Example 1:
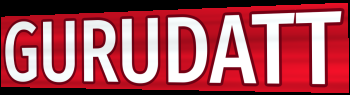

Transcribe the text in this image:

GURUDATT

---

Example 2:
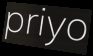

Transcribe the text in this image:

priyo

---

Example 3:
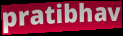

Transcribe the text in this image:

pratibhav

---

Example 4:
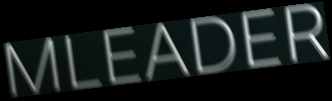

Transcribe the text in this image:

MLEADER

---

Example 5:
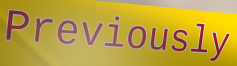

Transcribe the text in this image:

Previously